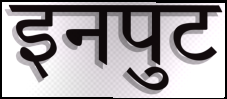
इनपुट